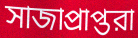
সাজাপ্রাপ্তরা